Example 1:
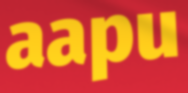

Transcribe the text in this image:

aapu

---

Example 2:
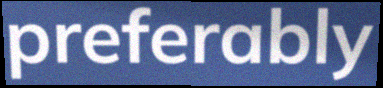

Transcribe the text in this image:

preferably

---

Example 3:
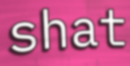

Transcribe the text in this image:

shat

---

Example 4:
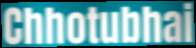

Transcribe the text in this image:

Chhotubhai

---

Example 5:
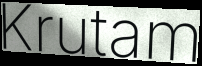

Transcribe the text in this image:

Krutam